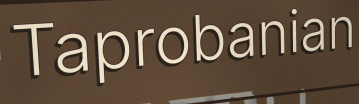
Taprobanian